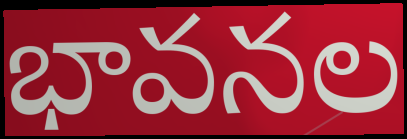
భావనల